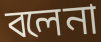
বলেনা